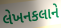
લેખનકલાને